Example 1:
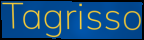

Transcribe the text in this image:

Tagrisso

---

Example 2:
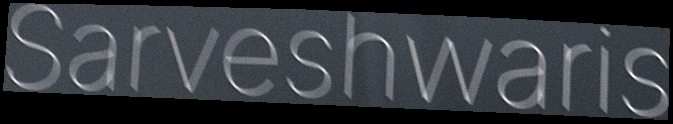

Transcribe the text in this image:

Sarveshwaris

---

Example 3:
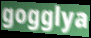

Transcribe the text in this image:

gogglya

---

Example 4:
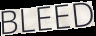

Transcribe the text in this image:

BLEED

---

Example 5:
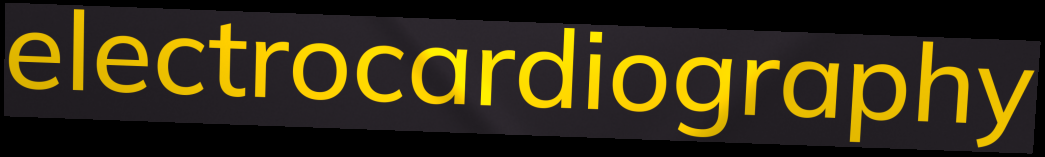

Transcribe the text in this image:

electrocardiography